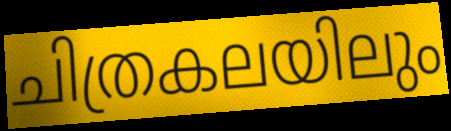
ചിത്രകലയിലും